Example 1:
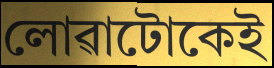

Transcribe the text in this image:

লোৱাটোকেই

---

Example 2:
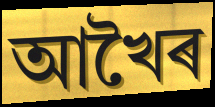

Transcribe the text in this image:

আখৈৰ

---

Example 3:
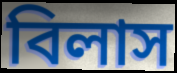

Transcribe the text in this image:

বিলাস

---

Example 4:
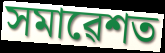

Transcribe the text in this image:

সমাৱেশত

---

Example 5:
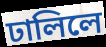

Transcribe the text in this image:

ঢালিলে